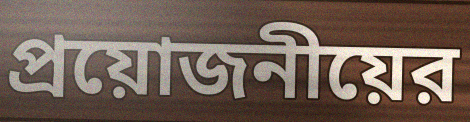
প্রয়োজনীয়ের